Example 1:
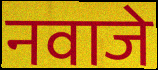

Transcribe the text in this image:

नवाजे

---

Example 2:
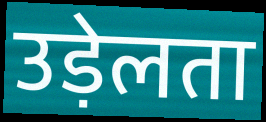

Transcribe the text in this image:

उड़ेलता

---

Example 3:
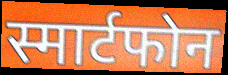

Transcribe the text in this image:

स्मार्टफोन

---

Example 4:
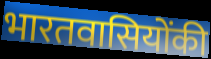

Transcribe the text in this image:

भारतवासियोंकी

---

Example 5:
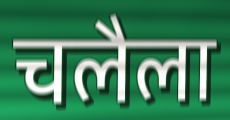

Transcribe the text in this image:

चलैला